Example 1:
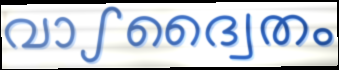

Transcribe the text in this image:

വാഽദ്വൈതം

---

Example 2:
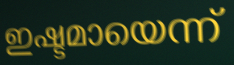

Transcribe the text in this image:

ഇഷ്ടമായെന്ന്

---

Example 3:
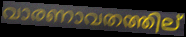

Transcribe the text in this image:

വാരണാവതത്തില്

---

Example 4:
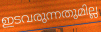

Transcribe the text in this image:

ഇടവരുന്നതുമില്ല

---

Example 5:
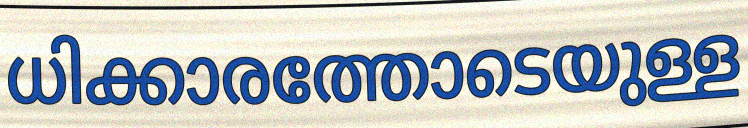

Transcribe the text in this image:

ധിക്കാരത്തോടെയുള്ള